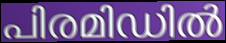
പിരമിഡിൽ